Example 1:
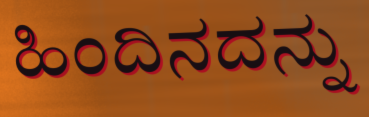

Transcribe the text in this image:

ಹಿಂದಿನದನ್ನು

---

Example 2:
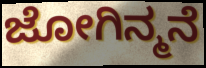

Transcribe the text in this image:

ಜೋಗಿನ್ಮನೆ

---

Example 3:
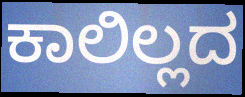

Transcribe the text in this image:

ಕಾಲಿಲ್ಲದ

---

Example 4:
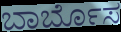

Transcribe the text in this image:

ಬಾರ್ಬೊಸ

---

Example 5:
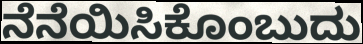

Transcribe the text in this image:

ನೆನೆಯಿಸಿಕೊಂಬುದು